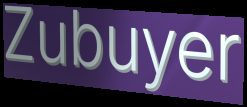
Zubuyer